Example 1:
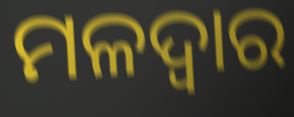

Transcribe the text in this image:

ମଳଦ୍ଵାର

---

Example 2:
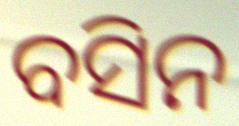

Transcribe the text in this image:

ବସିନ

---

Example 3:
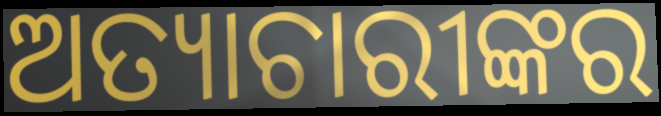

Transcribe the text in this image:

ଅତ୍ୟାଚାରୀଙ୍କର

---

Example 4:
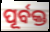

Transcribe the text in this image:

ପୂର୍ବକ୍ତ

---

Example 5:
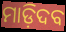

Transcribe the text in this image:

ମାଡ଼ିଦବ